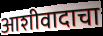
आशीवादाचा